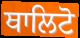
ਥਾਲਿਟੋ